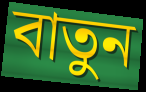
বাতুন